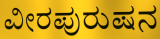
ವೀರಪುರುಷನ